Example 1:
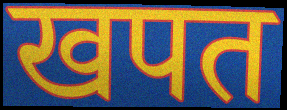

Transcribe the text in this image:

खपत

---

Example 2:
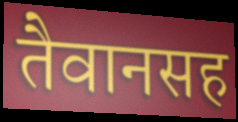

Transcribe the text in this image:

तैवानसह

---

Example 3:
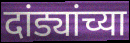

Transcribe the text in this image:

दांड्यांच्या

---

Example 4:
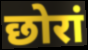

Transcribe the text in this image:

छोरां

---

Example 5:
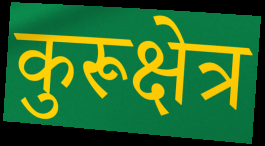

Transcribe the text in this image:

कुरूक्षेत्र